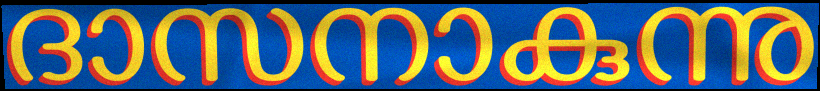
ദാസനാകുന്നു